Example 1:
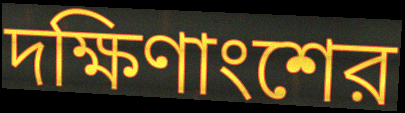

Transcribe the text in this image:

দক্ষিণাংশের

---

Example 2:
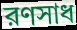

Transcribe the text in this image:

রণসাধ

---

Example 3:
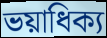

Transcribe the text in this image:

ভয়াধিক্য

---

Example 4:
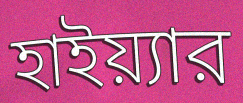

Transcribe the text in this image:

হাইয়্যার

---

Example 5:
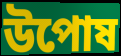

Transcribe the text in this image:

উপোষ